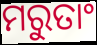
ମରୁତାଂ